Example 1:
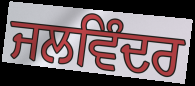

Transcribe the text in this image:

ਜਲਵਿੰਦਰ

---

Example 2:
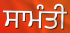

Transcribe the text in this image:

ਸਾਮੰਤੀ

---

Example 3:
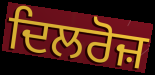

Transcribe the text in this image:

ਦਿਲਰੋਜ਼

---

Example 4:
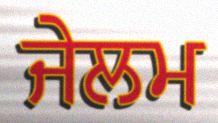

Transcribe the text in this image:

ਜੇਲਮ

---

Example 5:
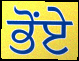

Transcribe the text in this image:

ਭੋਂਏ